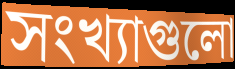
সংখ্যাগুলো